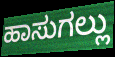
ಹಾಸುಗಲ್ಲು